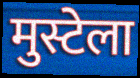
मुस्टेला